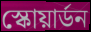
স্কোয়ার্ডন